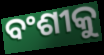
ବଂଶୀକୁ